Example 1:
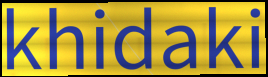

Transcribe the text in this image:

khidaki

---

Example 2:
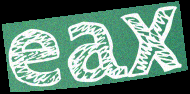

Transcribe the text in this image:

eax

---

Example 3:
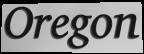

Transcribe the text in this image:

Oregon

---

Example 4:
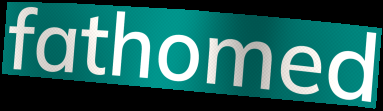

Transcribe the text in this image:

fathomed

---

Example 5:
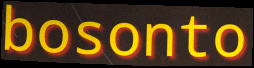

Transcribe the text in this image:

bosonto